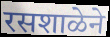
रसशाळेने